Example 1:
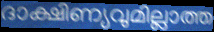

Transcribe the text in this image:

ദാക്ഷിണ്യവുമില്ലാത്ത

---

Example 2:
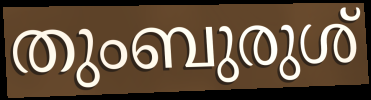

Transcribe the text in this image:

തുംബുരുശ്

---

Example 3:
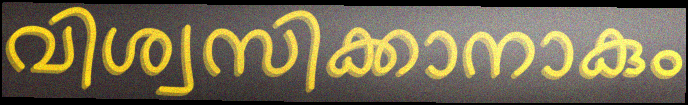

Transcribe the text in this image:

വിശ്വസിക്കാനാകും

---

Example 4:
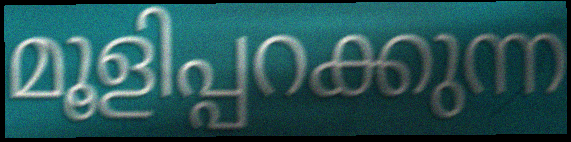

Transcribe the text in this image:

മൂളിപ്പറക്കുന്ന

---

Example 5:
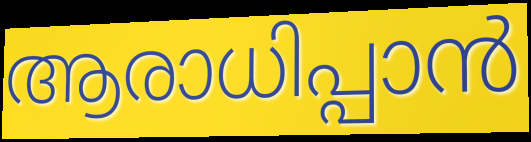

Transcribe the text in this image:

ആരാധിപ്പാൻ